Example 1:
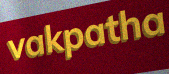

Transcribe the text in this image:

vakpatha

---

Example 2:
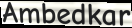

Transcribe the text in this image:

Ambedkar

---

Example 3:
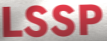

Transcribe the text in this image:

LSSP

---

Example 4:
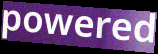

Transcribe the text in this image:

powered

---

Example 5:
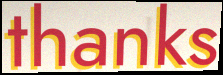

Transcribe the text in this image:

thanks